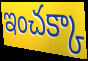
ఇంచక్కా